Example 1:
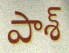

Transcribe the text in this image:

పాశ్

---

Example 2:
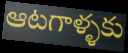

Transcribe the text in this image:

ఆటగాళ్ళకు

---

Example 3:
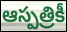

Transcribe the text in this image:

ఆస్పత్రికీ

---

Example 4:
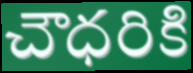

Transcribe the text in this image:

చౌధరికి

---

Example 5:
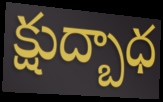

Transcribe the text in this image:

క్షుద్బాధ